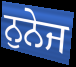
ਨੁਨੇਜ